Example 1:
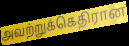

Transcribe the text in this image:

அவற்றுக்கெதிரான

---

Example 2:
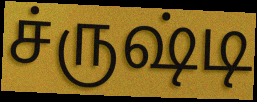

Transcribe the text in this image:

ச்ருஷ்டி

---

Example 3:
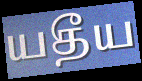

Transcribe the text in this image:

யதீய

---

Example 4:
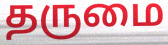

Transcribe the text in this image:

தருமை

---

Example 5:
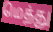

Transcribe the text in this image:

மெத்து